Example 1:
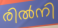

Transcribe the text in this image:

രിൽനി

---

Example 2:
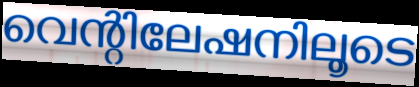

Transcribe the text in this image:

വെന്റിലേഷനിലൂടെ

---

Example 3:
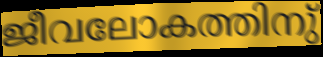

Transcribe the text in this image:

ജീവലോകത്തിനു്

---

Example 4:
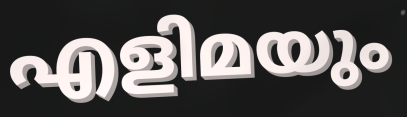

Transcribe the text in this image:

എളിമയും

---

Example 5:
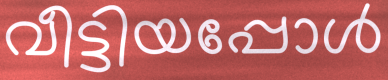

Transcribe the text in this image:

വീട്ടിയപ്പോൾ